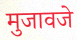
मुजावजे